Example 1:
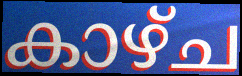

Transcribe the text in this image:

കാഴ്ച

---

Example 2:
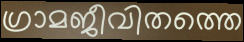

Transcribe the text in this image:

ഗ്രാമജീവിതത്തെ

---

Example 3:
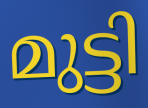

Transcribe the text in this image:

മുട്ടി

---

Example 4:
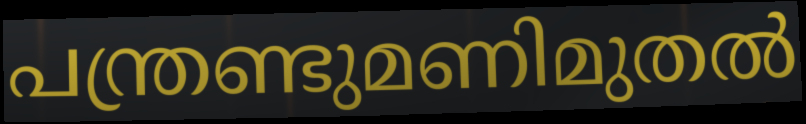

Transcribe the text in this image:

പന്ത്രണ്ടുമണിമുതൽ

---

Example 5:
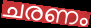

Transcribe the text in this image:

ചരണം